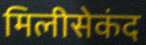
मिलीसेकंद